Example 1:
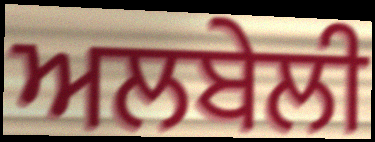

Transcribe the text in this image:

ਅਲਬੇਲੀ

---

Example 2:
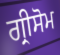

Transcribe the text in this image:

ਗ੍ਰੀਸੋਮ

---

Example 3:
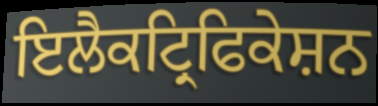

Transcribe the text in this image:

ਇਲੈਕਟ੍ਰਿਫਿਕੇਸ਼ਨ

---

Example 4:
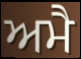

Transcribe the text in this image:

ਅਮੈ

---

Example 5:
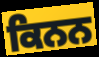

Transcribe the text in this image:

ਕਿਨਨ